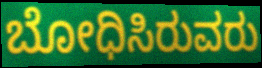
ಬೋಧಿಸಿರುವರು